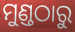
ମୁଣ୍ଡଠାରୁ